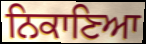
ਨਿਕਾਣਿਆ